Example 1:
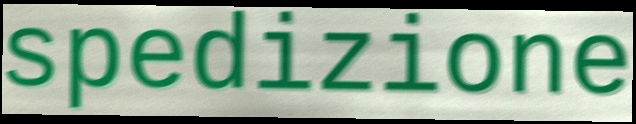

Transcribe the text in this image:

spedizione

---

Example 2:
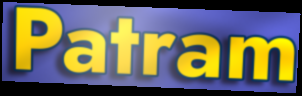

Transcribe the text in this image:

Patram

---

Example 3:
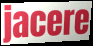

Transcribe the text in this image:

jacere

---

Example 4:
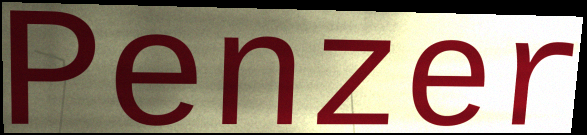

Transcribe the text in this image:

Penzer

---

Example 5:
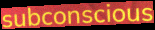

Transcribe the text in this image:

subconscious